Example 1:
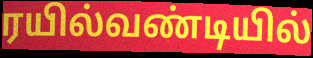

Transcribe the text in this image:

ரயில்வண்டியில்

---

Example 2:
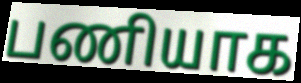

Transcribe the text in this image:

பணியாக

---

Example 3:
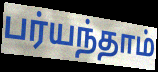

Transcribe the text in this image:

பர்யந்தாம்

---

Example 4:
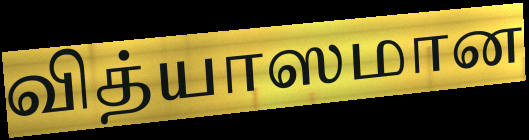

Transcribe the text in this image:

வித்யாஸமான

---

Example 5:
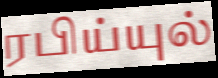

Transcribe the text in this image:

ரபிய்யுல்